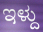
ಇಳ್ದು